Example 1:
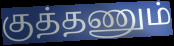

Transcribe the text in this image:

குத்தணும்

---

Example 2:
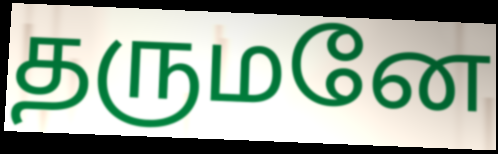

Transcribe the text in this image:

தருமனே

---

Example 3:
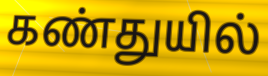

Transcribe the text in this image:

கண்துயில்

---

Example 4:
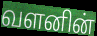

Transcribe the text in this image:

வளனின்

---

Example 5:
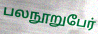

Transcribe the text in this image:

பலநூறுபேர்